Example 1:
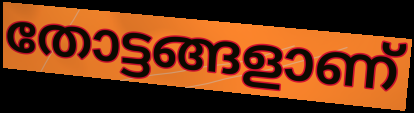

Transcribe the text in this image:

തോട്ടങ്ങളാണ്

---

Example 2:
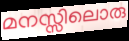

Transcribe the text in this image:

മനസ്സിലൊരു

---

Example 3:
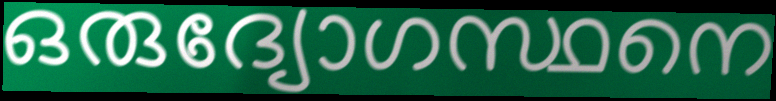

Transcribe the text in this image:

ഒരുദ്യോഗസ്ഥനെ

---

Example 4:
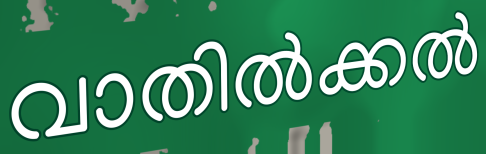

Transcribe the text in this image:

വാതിൽക്കൽ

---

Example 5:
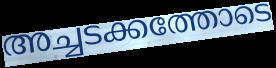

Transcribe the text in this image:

അച്ചടക്കത്തോടെ